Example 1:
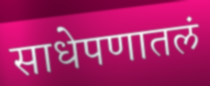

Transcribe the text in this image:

साधेपणातलं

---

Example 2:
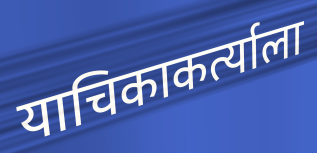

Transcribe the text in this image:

याचिकाकर्त्याला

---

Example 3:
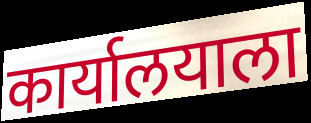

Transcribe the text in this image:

कार्यालयाला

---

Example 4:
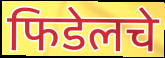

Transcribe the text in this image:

फिडेलचे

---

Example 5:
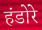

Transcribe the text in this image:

हंडोरे